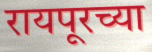
रायपूरच्या